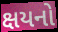
ક્ષયનો